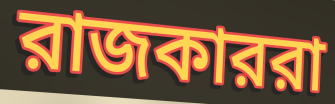
রাজকাররা